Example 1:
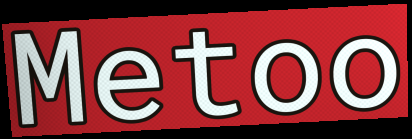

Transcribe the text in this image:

Metoo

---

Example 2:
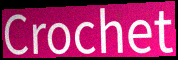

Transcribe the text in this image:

Crochet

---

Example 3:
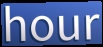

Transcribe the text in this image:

hour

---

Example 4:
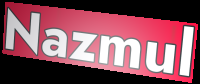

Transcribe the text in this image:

Nazmul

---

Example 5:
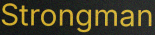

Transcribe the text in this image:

Strongman